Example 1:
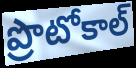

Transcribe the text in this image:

ప్రొటోకాల్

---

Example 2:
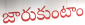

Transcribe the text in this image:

జారుకుంటాం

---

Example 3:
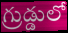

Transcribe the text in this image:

గ్రుడ్డులో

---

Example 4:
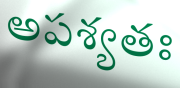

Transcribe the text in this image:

అపశ్యతః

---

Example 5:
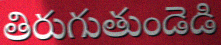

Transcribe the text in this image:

తిరుగుతుండెడి